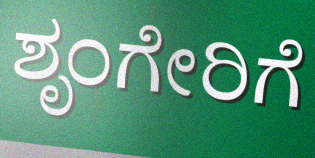
ಶೃಂಗೇರಿಗೆ